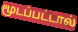
மூடப்பட்டால்